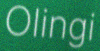
Olingi